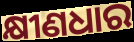
କ୍ଷୀଣଧାର